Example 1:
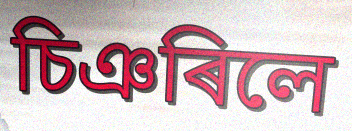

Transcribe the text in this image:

চিঞৰিলে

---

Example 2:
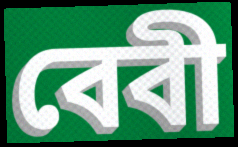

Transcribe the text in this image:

বেবী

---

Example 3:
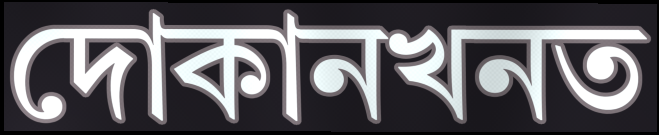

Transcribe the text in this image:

দোকানখনত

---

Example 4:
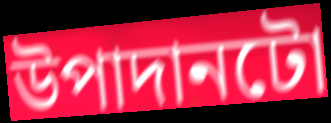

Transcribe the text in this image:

উপাদানটো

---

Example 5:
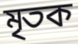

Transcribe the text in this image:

মৃতক